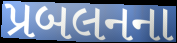
પ્રબલનના